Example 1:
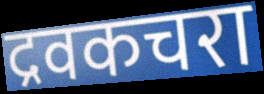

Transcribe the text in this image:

द्रवकचरा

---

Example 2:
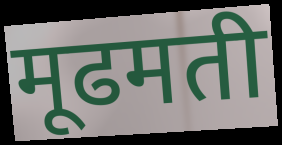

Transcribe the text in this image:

मूढमती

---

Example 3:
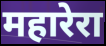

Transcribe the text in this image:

महारेरा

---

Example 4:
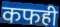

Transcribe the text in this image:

कफही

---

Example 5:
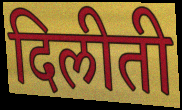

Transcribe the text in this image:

दिलीती